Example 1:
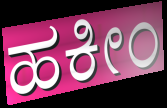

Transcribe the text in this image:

ಹಕೀಂ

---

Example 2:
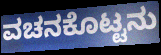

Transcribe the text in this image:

ವಚನಕೊಟ್ಟನು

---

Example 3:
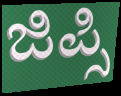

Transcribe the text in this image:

ಜಿಪ್ಸಿ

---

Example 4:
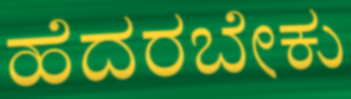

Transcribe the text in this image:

ಹೆದರಬೇಕು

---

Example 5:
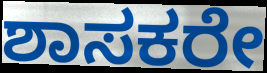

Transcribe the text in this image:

ಶಾಸಕರೇ